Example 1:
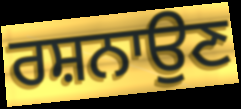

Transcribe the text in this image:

ਰਸ਼ਨਾਉਣ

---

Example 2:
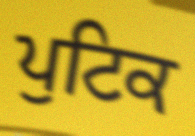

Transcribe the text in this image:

ਪੁਟਿਕ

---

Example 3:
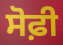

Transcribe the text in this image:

ਸੋਫ਼ੀ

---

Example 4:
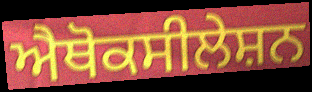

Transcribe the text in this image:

ਐਥੋਕਸੀਲੇਸ਼ਨ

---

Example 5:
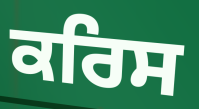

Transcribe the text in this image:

ਕਰਿਸ